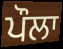
ਪੌਲਾ